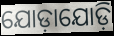
ଯୋଡ଼ାଯୋଡ଼ି